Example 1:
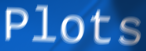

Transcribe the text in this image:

Plots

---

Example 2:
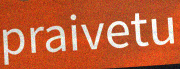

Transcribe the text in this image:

praivetu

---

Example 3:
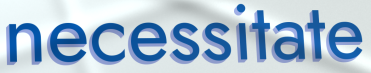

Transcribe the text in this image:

necessitate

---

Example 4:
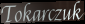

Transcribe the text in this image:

Tokarczuk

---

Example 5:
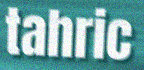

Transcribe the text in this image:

tahric